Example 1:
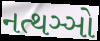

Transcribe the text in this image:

નત્થઞ્ઞો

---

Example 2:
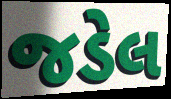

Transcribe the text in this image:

જડેલ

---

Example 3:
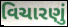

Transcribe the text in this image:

વિચારણું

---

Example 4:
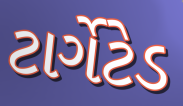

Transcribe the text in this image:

ટાર્ગેટેડ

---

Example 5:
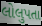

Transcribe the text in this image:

લોલુપતા